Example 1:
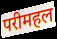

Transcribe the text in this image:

परीमहल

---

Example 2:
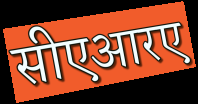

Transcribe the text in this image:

सीएआरए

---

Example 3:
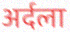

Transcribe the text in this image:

अर्दला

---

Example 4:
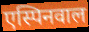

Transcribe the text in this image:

एस्पिनवाल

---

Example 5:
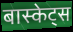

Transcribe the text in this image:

बास्केट्स